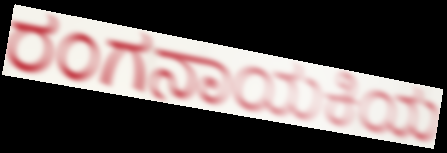
ರಂಗನಾಯಕಿಯ